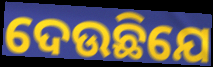
ଦେଉଛିଯେ